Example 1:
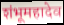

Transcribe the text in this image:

शंभूमहादेव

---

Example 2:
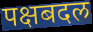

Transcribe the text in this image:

पक्षबदल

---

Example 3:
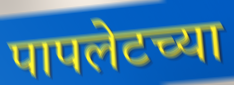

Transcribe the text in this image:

पापलेटच्या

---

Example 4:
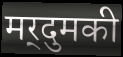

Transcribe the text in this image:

मर्दुमकी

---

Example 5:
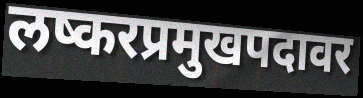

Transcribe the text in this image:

लष्करप्रमुखपदावर